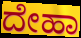
ದೇಹಾ